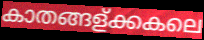
കാതങ്ങള്ക്കകലെ